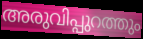
അരുവിപ്പുറത്തും